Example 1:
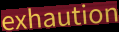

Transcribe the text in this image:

exhaution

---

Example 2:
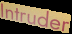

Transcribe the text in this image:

Intruder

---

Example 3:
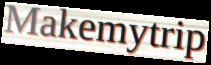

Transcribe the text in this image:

Makemytrip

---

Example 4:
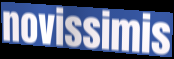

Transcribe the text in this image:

novissimis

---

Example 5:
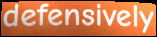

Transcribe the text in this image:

defensively